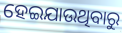
ହେଇଯାଉଥିବାରୁ